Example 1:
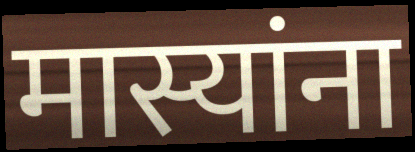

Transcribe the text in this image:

मास्यांना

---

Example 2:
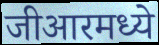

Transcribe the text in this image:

जीआरमध्ये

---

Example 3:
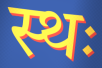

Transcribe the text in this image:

स्थः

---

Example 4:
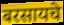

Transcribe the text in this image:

बरसायचे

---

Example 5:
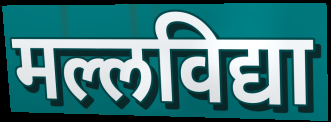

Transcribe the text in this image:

मल्लविद्या